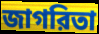
জাগরিতা